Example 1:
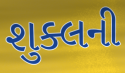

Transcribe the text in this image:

શુક્લની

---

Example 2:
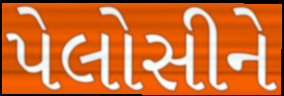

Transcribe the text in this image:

પેલોસીને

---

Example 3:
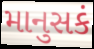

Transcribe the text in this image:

માનુસકં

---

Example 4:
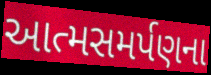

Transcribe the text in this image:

આત્મસમર્પણના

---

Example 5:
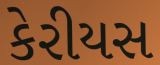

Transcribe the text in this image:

કેરીયસ